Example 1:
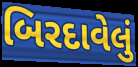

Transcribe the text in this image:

બિરદાવેલું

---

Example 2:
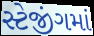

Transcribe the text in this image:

સ્ટેજીંગમાં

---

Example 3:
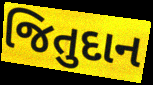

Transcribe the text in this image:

જિતુદાન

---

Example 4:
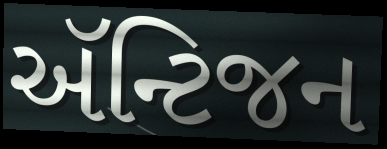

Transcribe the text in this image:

ઍન્ટિજન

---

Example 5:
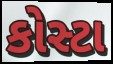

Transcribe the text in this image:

કોસ્ટા